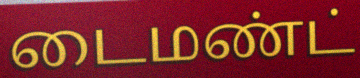
டைமண்ட்